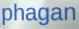
phagan